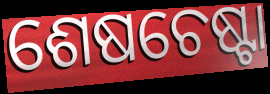
ଶେଷଚେଷ୍ଟା